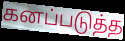
கனப்படுத்த